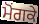
ਮੋਂਗਕੇ